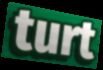
turt